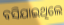
ବସିଯାଇଥିଲେ